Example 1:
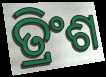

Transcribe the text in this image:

ତ୍ରିଂଶ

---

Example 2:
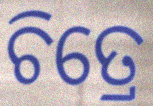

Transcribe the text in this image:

ଚିତ୍ରେ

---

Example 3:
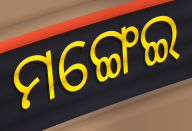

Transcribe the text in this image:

ମଙ୍ଗେଇ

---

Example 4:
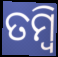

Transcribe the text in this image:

ତମ୍ବି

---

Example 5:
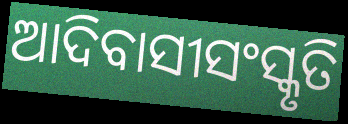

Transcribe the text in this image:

ଆଦିବାସୀସଂସ୍କୃତି